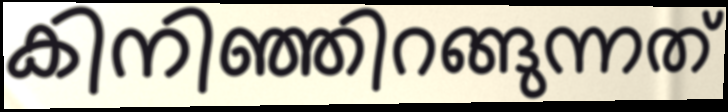
കിനിഞ്ഞിറങ്ങുന്നത്